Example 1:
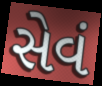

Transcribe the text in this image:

સેવં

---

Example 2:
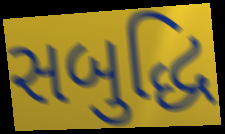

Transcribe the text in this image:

સબુદ્ધિ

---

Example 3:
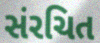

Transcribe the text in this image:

સંરચિત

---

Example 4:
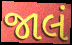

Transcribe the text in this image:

જાલં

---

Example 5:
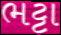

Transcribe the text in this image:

ભટ્ટા